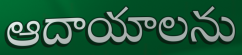
ఆదాయాలను